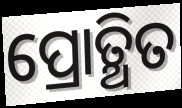
ପ୍ରୋତ୍ଥିତ